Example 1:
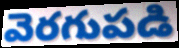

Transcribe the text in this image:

వెరగుపడి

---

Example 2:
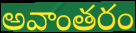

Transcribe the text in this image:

అవాంతరం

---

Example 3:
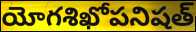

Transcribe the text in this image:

యోగశిఖోపనిషత్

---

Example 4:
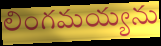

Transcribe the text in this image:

లింగమయ్యను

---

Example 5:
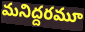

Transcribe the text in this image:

మనిద్దరమూ